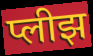
प्लीझ